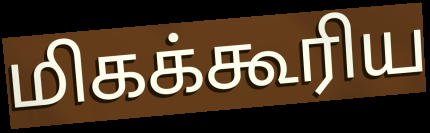
மிகக்கூரிய